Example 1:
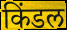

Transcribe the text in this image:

किंडल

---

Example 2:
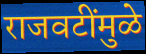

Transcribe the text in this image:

राजवटींमुळे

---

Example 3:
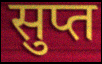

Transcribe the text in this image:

सुप्त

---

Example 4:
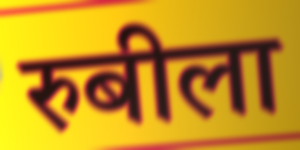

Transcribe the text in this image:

रुबीला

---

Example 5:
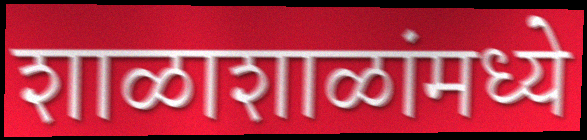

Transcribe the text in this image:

शाळाशाळांमध्ये